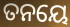
ତନୟେ